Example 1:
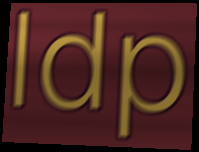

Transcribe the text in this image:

ldp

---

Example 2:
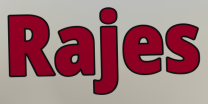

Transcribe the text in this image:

Rajes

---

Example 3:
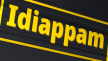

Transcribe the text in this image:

Idiappam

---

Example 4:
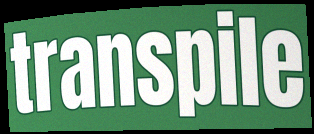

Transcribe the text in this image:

transpile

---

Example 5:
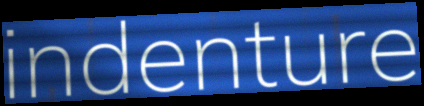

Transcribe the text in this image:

indenture